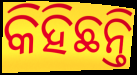
କିହିଛନ୍ତି